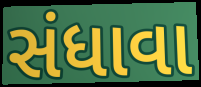
સંધાવા